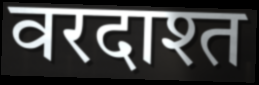
वरदाश्त